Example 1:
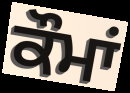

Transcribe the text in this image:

ਕੌਮਾਂ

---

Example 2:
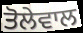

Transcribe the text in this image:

ਤੋਲੇਵਾਲ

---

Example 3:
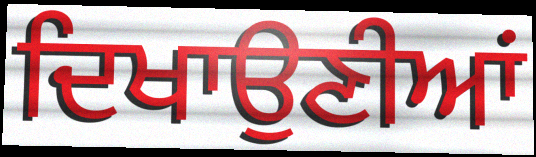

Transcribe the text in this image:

ਦਿਖਾਉਣੀਆਂ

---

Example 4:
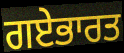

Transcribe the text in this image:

ਗਏਭਾਰਤ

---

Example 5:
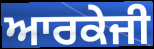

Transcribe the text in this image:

ਆਰਕੇਜੀ